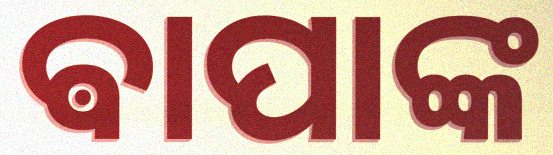
ଵାପାଙ୍କ